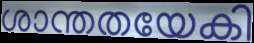
ശാന്തതയേകി